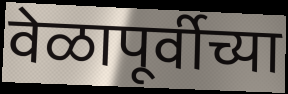
वेळापूर्वीच्या